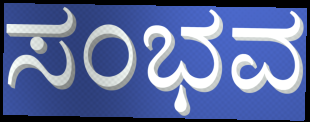
ಸಂಭವ